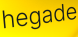
hegade